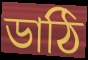
ডাঠি